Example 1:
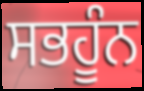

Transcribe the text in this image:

ਸਭਹੂੰਨ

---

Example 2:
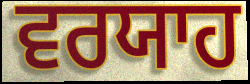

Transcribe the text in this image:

ਵਰਯਾਹ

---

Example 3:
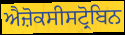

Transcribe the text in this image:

ਐਜ਼ੋਕਸੀਸਟ੍ਰੋਬਿਨ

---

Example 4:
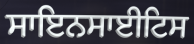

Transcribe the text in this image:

ਸਾਇਨਸਾਈਟਿਸ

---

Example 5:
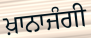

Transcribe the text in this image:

ਖ਼ਾਨਾਜੰਗੀ